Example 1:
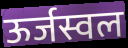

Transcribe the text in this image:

ऊर्जस्वल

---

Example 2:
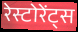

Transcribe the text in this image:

रेस्‍टोरेंट्स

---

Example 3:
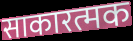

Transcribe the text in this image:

साकारत्मक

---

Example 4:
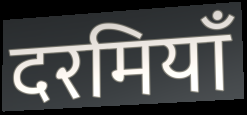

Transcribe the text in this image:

दरमियाँ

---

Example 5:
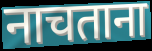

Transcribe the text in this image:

नाचताना